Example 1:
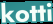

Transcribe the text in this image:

kotti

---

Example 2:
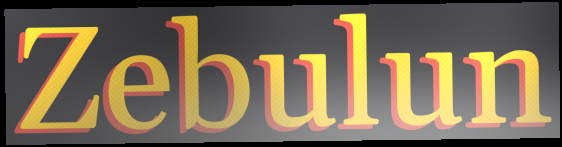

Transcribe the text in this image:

Zebulun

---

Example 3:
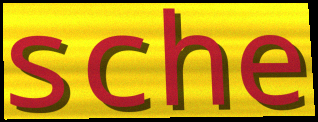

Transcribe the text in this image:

sche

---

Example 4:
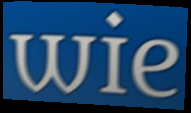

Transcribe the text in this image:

wie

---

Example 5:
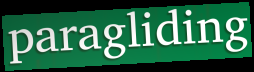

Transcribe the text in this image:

paragliding